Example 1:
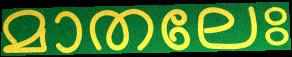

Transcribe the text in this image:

മാതലേഃ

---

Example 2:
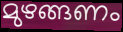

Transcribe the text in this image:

മുഴങ്ങണം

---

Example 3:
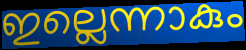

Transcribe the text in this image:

ഇല്ലെന്നാകും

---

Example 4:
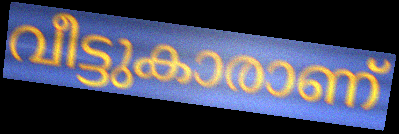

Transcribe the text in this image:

വീട്ടുകാരാണ്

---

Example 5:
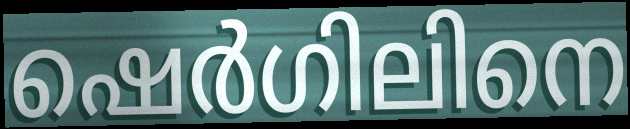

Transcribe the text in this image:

ഷെർഗിലിനെ